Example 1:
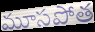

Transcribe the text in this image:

మూసపోత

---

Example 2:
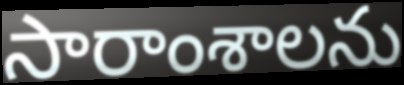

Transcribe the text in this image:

సారాంశాలను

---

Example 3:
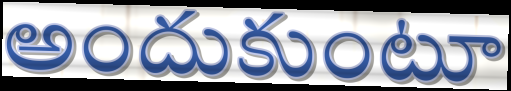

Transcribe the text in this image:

అందుకుంటూ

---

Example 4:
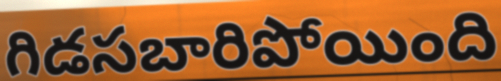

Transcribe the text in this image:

గిడసబారిపోయింది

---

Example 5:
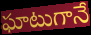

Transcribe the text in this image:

ఘాటుగానే